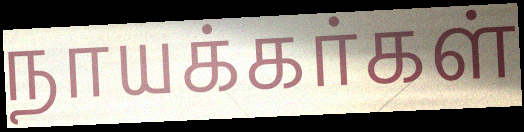
நாயக்கர்கள்